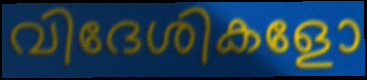
വിദേശികളോ